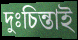
দুঃচিন্তাই